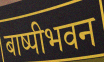
बाष्पीभवन